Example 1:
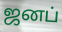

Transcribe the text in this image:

ஜனப்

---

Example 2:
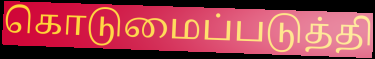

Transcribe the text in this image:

கொடுமைப்படுத்தி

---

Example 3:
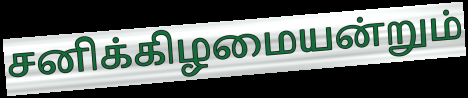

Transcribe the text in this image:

சனிக்கிழமையன்றும்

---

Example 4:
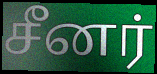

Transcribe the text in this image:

சீனர்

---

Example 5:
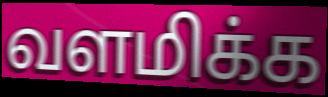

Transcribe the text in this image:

வளமிக்க